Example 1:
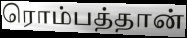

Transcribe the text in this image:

ரொம்பத்தான்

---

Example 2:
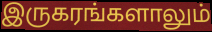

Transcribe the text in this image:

இருகரங்களாலும்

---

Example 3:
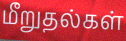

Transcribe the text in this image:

மீறுதல்கள்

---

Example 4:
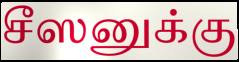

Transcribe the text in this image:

சீஸனுக்கு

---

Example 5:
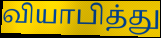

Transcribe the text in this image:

வியாபித்து